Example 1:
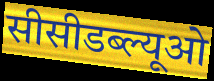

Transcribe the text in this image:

सीसीडब्ल्यूओ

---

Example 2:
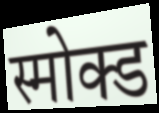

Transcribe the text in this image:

स्मोक्ड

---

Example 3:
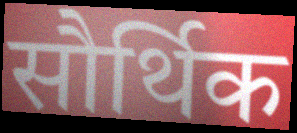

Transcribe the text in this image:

सौर्थिक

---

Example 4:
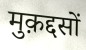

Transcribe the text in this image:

मुक़द्दसों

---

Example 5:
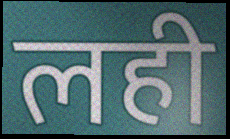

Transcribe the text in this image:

लही